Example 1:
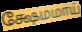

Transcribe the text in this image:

க்ஷேமமாய்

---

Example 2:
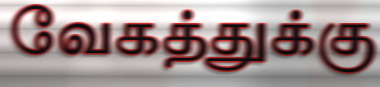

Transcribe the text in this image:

வேகத்துக்கு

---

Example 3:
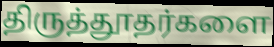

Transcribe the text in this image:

திருத்தூதர்களை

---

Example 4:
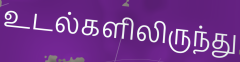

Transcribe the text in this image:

உடல்களிலிருந்து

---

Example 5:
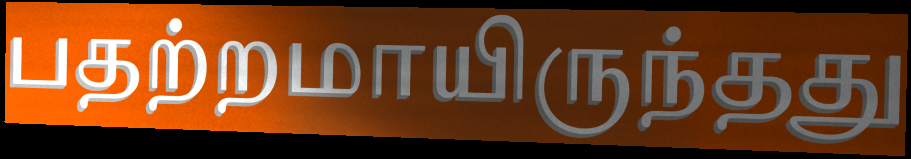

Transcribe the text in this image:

பதற்றமாயிருந்தது